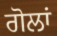
ਗੋਲਾਂ